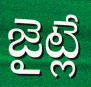
జైట్లే